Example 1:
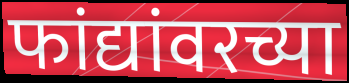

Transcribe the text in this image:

फांद्यांवरच्या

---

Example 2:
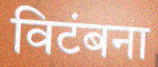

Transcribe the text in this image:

विटंबना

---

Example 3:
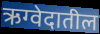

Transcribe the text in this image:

ऋग्वेदातील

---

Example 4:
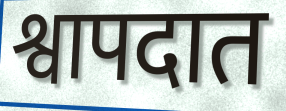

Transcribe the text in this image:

श्वापदात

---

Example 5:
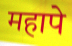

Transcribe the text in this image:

महापे